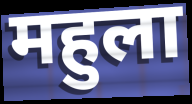
महुला